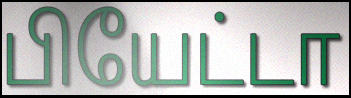
பியேட்டா